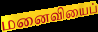
மனைவியைப்